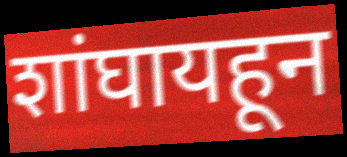
शांघायहून